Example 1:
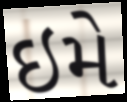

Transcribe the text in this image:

ઇમે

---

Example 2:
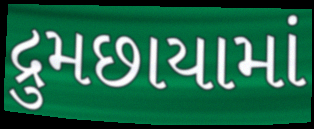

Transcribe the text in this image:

દ્રુમછાયામાં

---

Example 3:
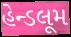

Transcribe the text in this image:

હેન્ડલૂમ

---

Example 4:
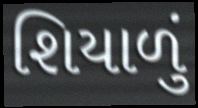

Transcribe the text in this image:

શિયાળું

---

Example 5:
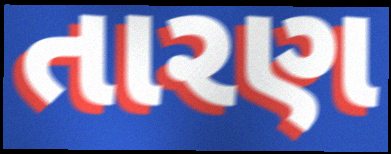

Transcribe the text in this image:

તારણ